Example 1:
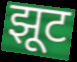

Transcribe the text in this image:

झूट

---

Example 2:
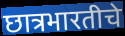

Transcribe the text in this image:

छात्रभारतीचे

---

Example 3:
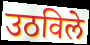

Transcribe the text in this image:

उठविले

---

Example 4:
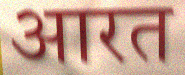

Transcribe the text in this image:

आरत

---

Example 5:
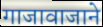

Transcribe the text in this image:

गाजावाजाने